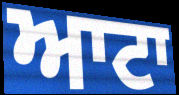
ਆਟਾ